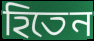
হিতেন